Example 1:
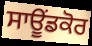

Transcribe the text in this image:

ਸਾਊਂਡਕੋਰ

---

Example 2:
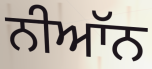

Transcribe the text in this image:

ਨੀਆੱਨ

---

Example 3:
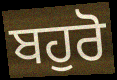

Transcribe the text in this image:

ਬਹੁਰੋ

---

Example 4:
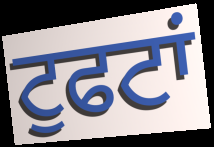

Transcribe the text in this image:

ਟੁਫਟਾਂ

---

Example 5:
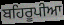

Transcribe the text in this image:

ਬਹਿਰੂਪੀਆ